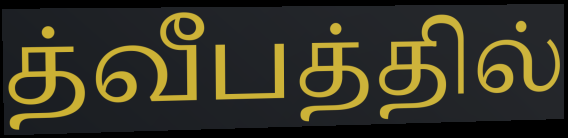
த்வீபத்தில்